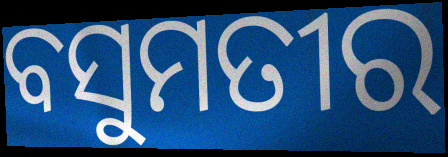
ବସୁମତୀର